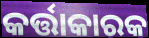
କର୍ତ୍ତାକାରକ